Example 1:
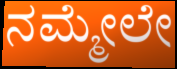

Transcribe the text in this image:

ನಮ್ಮೇಲೇ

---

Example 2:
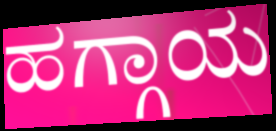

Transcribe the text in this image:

ಹಗ್ಗಾಯ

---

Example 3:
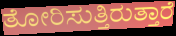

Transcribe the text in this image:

ತೋರಿಸುತ್ತಿರುತ್ತಾರೆ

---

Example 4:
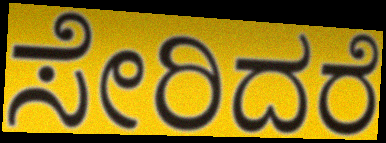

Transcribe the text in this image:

ಸೇರಿದರೆ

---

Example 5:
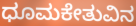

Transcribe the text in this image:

ಧೂಮಕೇತುವಿನ